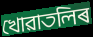
খোৱাতলিৰ